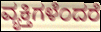
ವ್ಯಕ್ತಿಗಳೆಂದರೆ